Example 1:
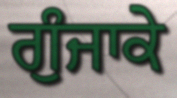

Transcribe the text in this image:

ਗੁੰਜਾਕੇ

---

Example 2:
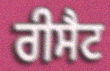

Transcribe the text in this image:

ਰੀਸੈਟ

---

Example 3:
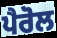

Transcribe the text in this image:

ਪੈਰੋਲ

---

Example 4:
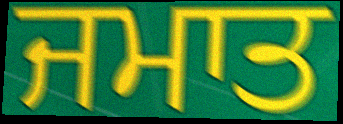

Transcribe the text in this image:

ਜਮਾਤ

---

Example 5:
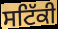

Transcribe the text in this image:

ਸਟਿੱਕੀ